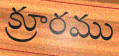
క్రూరము